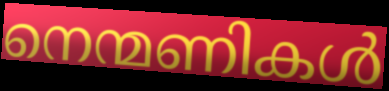
നെന്മണികൾ